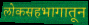
लोकसहभागातून